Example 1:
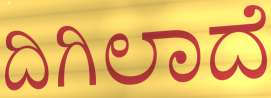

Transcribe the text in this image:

ದಿಗಿಲಾದೆ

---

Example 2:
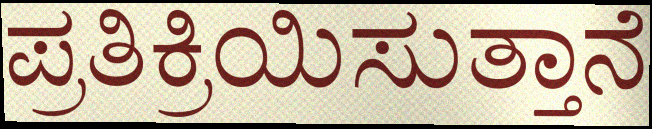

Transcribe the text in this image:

ಪ್ರತಿಕ್ರಿಯಿಸುತ್ತಾನೆ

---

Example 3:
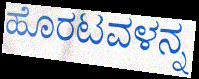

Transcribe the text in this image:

ಹೊರಟವಳನ್ನ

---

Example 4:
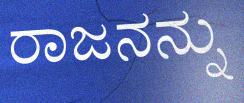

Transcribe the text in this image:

ರಾಜನನ್ನು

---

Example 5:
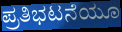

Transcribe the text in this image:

ಪ್ರತಿಭಟನೆಯೂ